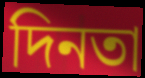
দিনতা